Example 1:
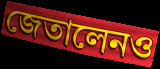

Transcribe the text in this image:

জেতালেনও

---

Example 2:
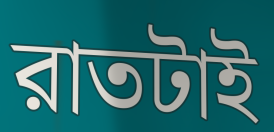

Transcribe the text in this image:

রাতটাই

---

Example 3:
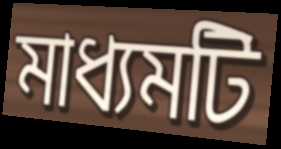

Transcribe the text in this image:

মাধ্যমটি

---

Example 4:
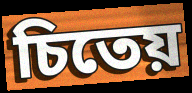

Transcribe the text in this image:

চিতেয়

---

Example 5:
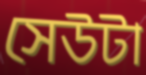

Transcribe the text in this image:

সেউটা